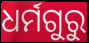
ଧର୍ମଗୁରୁ